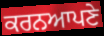
ਕਰਨਆਪਣੇ